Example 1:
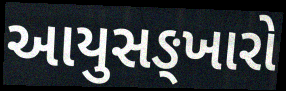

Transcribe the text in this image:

આયુસઙ્ખારો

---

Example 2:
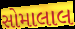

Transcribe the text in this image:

સોમાલાલ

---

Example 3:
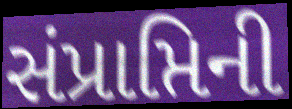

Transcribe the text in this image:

સંપ્રાપ્તિની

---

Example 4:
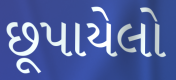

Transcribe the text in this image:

છૂપાયેલો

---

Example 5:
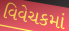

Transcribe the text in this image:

વિવેચકમાં